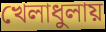
খেলাধুলায়